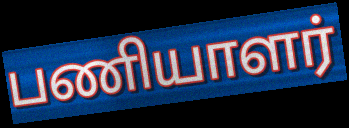
பணியாளர்